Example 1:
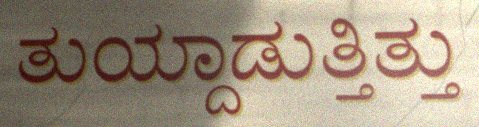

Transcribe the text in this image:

ತುಯ್ದಾಡುತ್ತಿತ್ತು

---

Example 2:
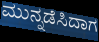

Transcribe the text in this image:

ಮುನ್ನಡೆಸಿದಾಗ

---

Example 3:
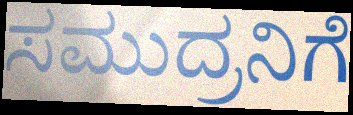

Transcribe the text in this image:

ಸಮುದ್ರನಿಗೆ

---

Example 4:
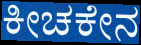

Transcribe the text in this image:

ಕೀಚಕೇನ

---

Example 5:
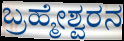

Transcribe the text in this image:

ಬ್ರಹ್ಮೇಶ್ವರನ